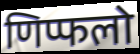
णिप्फलो